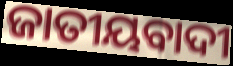
ଜାତୀୟବାଦୀ